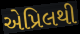
એપ્રિલથી